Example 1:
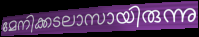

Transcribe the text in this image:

മേനിക്കടലാസായിരുന്നു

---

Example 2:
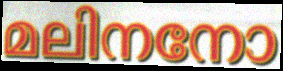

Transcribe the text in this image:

മലിനനോ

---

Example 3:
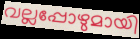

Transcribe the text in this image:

വല്ലപ്പോഴുമായി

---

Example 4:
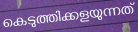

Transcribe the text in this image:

കെടുത്തിക്കളയുന്നത്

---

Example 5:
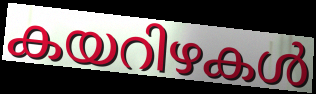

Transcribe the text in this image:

കയറിഴകൾ